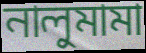
নালুমামা